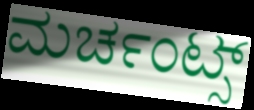
ಮರ್ಚಂಟ್ಸ್